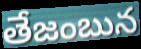
తేజంబున